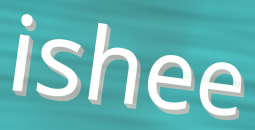
ishee